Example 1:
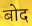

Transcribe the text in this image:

बोद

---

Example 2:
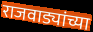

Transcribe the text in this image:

राजवाड्यांच्या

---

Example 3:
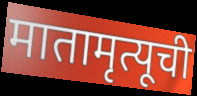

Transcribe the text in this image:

मातामृत्यूची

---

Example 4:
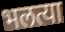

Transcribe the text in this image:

भलत्या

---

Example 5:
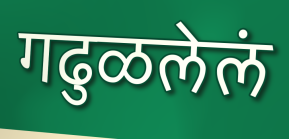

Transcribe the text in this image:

गढुळलेलं